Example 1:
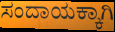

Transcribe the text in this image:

ಸಂದಾಯಕ್ಕಾಗಿ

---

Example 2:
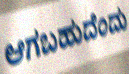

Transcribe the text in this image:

ಆಗಬಹುದೆಂದು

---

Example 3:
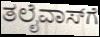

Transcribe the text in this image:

ತಲೈವಾಸ್‌ಗೆ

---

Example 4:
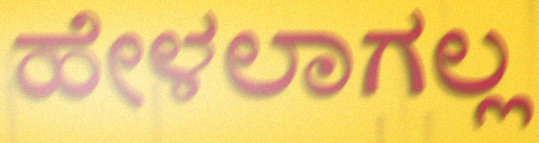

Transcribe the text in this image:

ಹೇಳಲಾಗಲ್ಲ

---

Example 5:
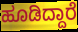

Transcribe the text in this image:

ಹೂಡಿದ್ದಾರೆ